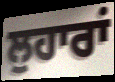
ਲੁਹਾਰਾਂ